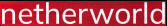
netherworld